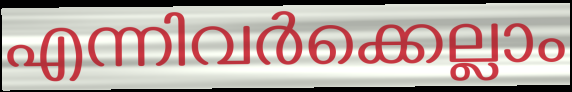
എന്നിവർക്കെല്ലാം